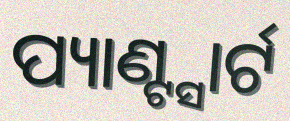
ପ୍ୟାଣ୍ଟ୍ସାର୍ଟ